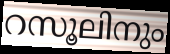
റസൂലിനും